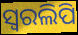
ସ୍ଵରଲିପି